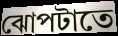
ঝোপটাতে